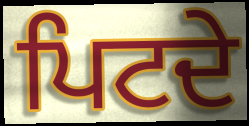
ਪਿਟਦੇ